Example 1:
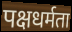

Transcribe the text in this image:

पक्षधर्मता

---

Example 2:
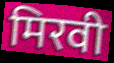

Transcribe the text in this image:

मिरवी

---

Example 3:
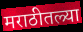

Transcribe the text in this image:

मराठीतल्या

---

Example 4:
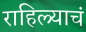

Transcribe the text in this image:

राहिल्याचं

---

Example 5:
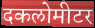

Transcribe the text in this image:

दकलोमीटर